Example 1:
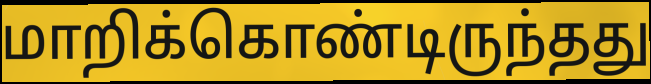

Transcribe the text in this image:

மாறிக்கொண்டிருந்தது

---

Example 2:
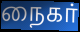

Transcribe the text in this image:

நைகர்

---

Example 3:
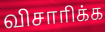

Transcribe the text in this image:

விசாரிக்க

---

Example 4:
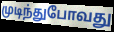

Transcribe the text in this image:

முடிந்துபோவது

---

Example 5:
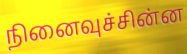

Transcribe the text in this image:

நினைவுச்சின்ன